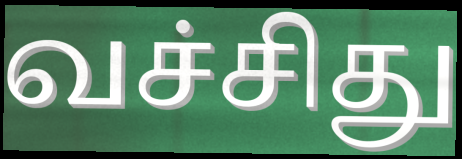
வச்சிது